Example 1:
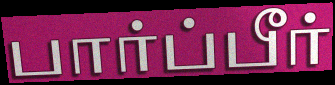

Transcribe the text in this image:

பார்ப்பீர்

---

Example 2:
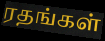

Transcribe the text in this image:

ரதங்கள்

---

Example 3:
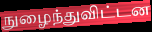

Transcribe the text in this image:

நுழைந்துவிட்டன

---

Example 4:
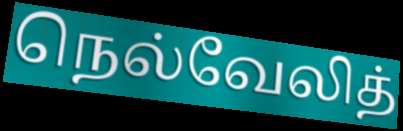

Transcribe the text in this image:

நெல்வேலித்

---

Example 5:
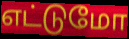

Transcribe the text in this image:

எட்டுமோ